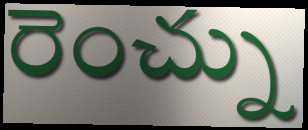
రెంచ్ను